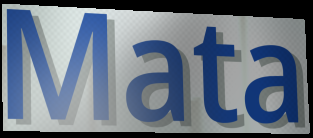
Mata